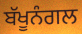
ਬੱਖੂਨੰਗਲ